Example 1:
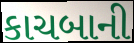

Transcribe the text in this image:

કાચબાની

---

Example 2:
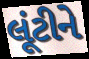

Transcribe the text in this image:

લૂંટીને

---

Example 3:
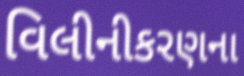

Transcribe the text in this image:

વિલીનીકરણના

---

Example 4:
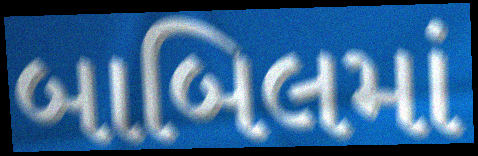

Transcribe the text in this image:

બાબિલમાં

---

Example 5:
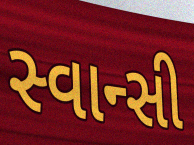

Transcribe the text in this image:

સ્વાન્સી